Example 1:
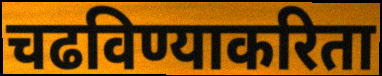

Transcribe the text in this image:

चढविण्याकरिता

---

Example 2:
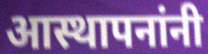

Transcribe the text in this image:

आस्थापनांनी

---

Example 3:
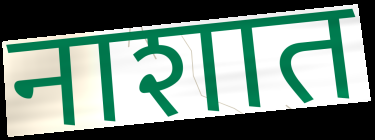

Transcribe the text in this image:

नाशात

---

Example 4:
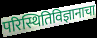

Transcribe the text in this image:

परिस्थितिविज्ञानाचा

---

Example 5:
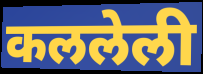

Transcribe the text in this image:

कललेली